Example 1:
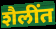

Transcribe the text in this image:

शैलींत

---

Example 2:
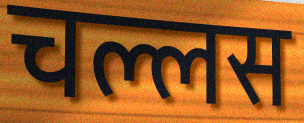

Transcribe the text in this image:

चल्लस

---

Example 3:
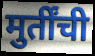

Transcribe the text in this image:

मुर्तींची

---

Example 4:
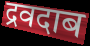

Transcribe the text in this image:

द्रवदाब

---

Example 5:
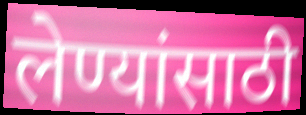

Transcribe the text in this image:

लेण्यांसाठी